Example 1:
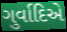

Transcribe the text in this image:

ગુર્વાદિએ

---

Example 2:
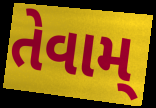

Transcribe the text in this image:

તેવામ્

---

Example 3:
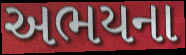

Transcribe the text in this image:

અભયના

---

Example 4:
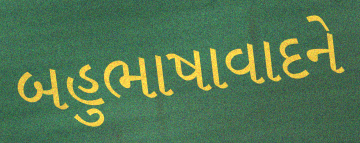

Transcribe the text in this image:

બહુભાષાવાદને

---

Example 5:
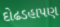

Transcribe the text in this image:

દોઢડહાપણ